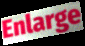
Enlarge